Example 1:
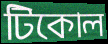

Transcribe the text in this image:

টিকোল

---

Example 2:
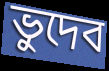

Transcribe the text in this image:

ভুদেব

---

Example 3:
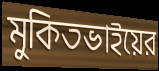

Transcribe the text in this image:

মুকিতভাইয়ের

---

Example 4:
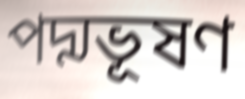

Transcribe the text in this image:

পদ্মভূষণ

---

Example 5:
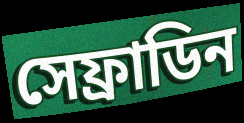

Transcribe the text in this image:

সেফ্রাডিন